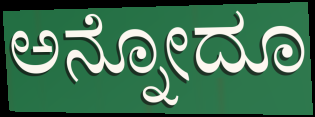
ಅನ್ನೋದೂ